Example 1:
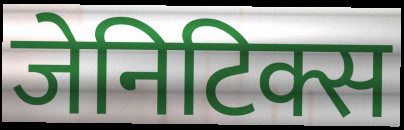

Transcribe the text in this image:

जेनिटिक्स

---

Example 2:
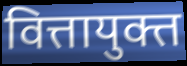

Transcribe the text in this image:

वित्तायुक्त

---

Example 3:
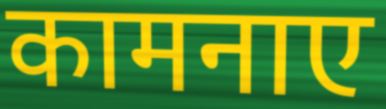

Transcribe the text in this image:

कामनाए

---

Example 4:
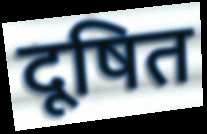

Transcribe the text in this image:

दूषित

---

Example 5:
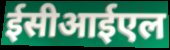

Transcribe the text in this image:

ईसीआईएल